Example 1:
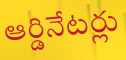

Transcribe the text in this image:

ఆర్డినేటర్లు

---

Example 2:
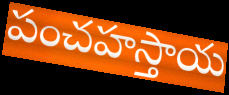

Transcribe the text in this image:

పంచహస్తాయ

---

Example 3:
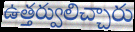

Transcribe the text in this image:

ఉత్తర్వులిచ్చారు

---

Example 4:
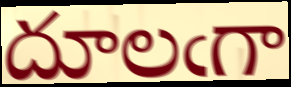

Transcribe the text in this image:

దూలఁగా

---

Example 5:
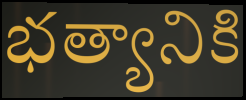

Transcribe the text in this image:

భత్యానికి